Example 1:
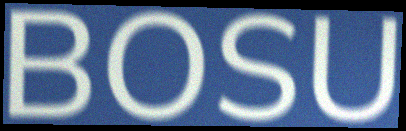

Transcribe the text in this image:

BOSU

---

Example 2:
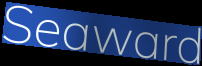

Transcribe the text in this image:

Seaward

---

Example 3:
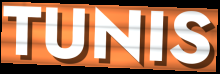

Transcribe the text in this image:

TUNIS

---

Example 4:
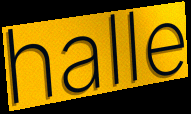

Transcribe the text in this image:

halle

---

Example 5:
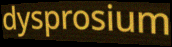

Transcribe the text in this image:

dysprosium